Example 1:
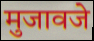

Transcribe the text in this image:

मुजावजे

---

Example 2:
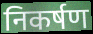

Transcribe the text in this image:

निकर्षण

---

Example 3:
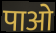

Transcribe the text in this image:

पाओ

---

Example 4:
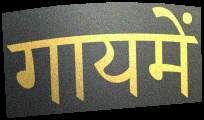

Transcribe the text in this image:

गायमें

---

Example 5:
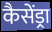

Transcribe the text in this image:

कैसेंड्रा